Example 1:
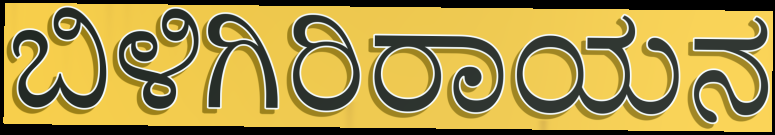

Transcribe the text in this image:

ಬಿಳಿಗಿರಿರಾಯನ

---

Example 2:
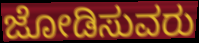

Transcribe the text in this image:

ಜೋಡಿಸುವರು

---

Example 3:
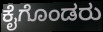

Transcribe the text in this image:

ಕೈಗೊಂಡರು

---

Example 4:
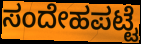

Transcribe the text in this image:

ಸಂದೇಹಪಟ್ಟೆ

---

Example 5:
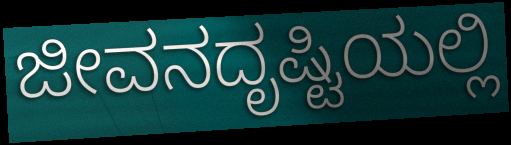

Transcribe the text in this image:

ಜೀವನದೃಷ್ಟಿಯಲ್ಲಿ